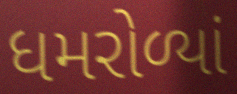
ધમરોળ્યાં